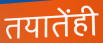
तयातेंही